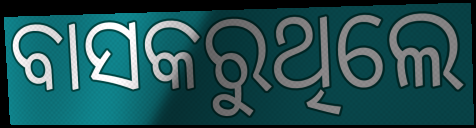
ବାସକରୁଥିଲେ